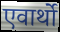
एवार्थो